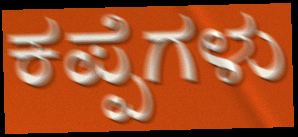
ಕಪ್ಪೆಗಳು